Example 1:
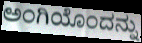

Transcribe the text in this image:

ಅಂಗಿಯೊಂದನ್ನು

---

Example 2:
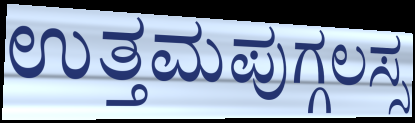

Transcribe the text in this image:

ಉತ್ತಮಪುಗ್ಗಲಸ್ಸ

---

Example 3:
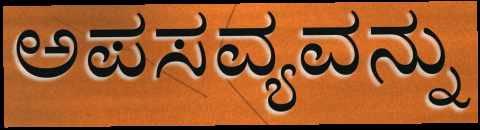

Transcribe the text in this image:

ಅಪಸವ್ಯವನ್ನು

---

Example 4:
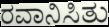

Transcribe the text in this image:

ರವಾನಿಸಿತು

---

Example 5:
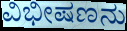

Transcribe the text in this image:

ವಿಭೀಷಣನು